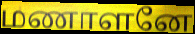
மணாளனே